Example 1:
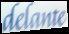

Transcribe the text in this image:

delante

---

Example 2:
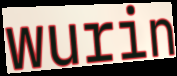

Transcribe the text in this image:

wurin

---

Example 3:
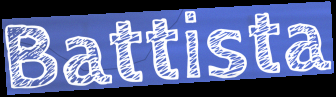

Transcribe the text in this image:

Battista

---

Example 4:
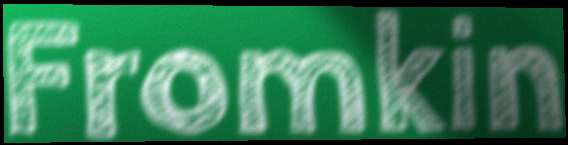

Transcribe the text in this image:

Fromkin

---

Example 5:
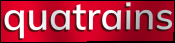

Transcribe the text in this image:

quatrains